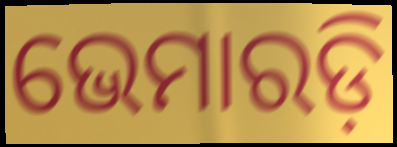
ଭେମାରଡ଼ି